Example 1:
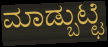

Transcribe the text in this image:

ಮಾಡ್ಬುಟ್ಟೆ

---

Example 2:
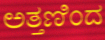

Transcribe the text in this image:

ಅತ್ತಣಿಂದ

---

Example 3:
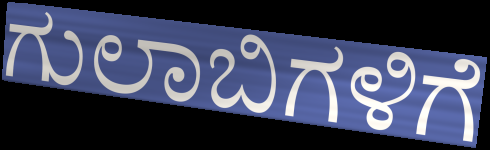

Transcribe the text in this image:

ಗುಲಾಬಿಗಳಿಗೆ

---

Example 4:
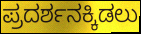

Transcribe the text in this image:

ಪ್ರದರ್ಶನಕ್ಕಿಡಲು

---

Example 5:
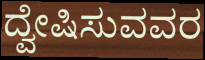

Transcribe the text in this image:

ದ್ವೇಷಿಸುವವರ